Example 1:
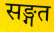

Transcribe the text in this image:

सङ्गत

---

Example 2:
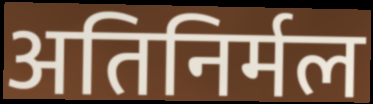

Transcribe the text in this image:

अतिनिर्मल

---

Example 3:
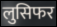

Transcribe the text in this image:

लुसिफर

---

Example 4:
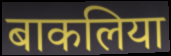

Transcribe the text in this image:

बाकलिया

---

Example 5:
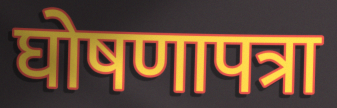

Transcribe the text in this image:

घोषणापत्रा